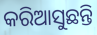
କରିଆସୁଛନ୍ତି